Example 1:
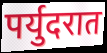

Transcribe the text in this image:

पर्युदरात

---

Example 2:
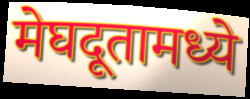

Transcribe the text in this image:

मेघदूतामध्ये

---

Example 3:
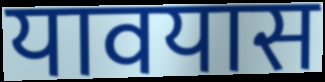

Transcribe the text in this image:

यावयास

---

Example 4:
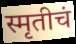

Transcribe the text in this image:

स्मृतीचं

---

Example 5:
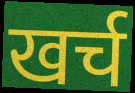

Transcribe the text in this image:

खर्च